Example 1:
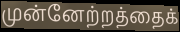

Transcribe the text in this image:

முன்னேற்றத்தைக்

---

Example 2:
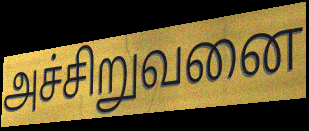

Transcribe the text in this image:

அச்சிறுவனை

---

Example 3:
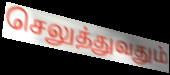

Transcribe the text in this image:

செலுத்துவதும்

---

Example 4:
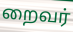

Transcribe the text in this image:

றைவர்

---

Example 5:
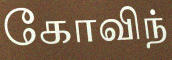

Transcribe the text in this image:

கோவிந்